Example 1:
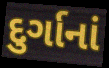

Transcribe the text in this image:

દુર્ગાનાં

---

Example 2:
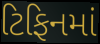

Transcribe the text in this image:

ટિફિનમાં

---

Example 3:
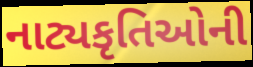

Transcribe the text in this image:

નાટ્યકૃતિઓની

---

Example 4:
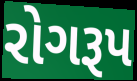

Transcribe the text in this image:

રોગરૂપ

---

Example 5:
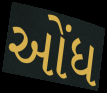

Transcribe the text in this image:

ઓંધ